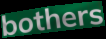
bothers